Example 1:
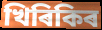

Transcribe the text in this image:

খিৰিকিৰ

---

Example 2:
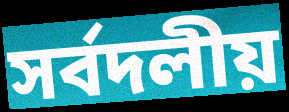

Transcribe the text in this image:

সৰ্বদলীয়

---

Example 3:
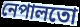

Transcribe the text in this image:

নেপালতো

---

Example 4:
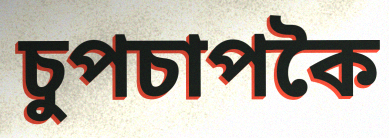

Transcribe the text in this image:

চুপচাপকৈ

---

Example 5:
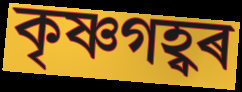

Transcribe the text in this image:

কৃষ্ণগহ্বৰ